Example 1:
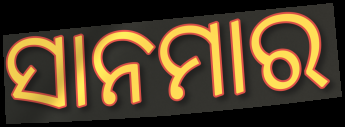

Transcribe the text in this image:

ସାନମାର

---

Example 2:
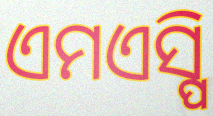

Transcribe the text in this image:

ଏମଏସ୍ପି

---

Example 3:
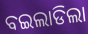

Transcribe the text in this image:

ବଇଲାଡିଲା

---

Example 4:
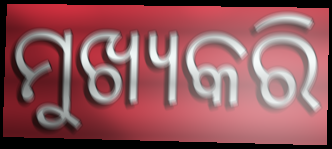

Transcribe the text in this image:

ମୁଖ୍ୟକରି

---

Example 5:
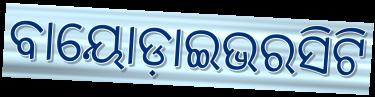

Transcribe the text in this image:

ବାୟୋଡ଼ାଇଭରସିଟି